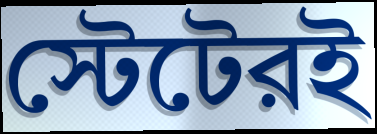
স্টেটেরই